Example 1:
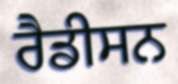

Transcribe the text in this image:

ਰੈਡੀਸਨ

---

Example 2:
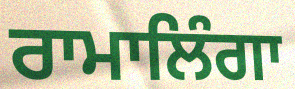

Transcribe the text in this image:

ਰਾਮਾਲਿੰਗਾ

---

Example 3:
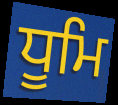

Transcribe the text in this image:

ਧੂਮਿ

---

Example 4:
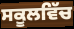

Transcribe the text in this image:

ਸਕੂਲਵਿੱਚ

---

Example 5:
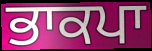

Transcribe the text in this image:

ਭਾਕਪਾ